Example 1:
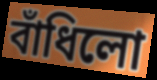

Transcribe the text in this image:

বাঁধিলো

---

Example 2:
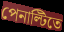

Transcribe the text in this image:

পেনাল্টিতে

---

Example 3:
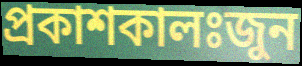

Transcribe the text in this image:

প্রকাশকালঃজুন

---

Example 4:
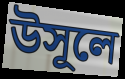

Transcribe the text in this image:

উসূলে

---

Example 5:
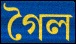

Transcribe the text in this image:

গৈল